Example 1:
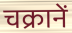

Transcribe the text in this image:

चक्रानें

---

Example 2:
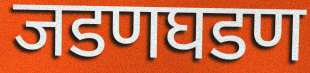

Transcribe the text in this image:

जडणघडण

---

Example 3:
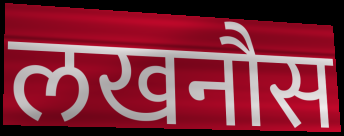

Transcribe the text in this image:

लखनौस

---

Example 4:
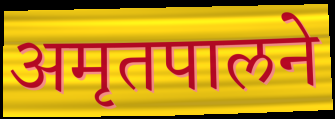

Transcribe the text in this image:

अमृतपालने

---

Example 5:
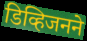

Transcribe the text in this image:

डिव्हिजनने